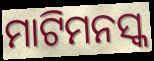
ମାଟିମନସ୍କ